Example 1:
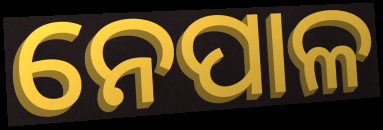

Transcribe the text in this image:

ନେପାଳ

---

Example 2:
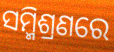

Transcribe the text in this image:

ସମ୍ମିଶ୍ରଣରେ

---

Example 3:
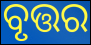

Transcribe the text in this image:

ବୃତ୍ତର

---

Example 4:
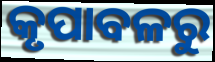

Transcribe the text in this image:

କୃପାବଳରୁ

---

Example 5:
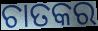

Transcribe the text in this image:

ଚାତକର